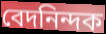
বেদনিন্দক